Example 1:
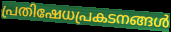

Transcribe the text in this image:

പ്രതിഷേധപ്രകടനങ്ങൾ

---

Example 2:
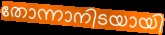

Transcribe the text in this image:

തോന്നാനിടയായി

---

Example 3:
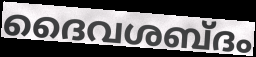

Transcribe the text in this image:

ദൈവശബ്ദം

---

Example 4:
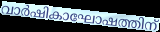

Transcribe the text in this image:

വാർഷികാഘോഷത്തിന്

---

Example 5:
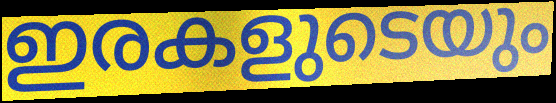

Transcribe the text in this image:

ഇരകളുടെയും